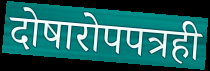
दोषारोपपत्रही